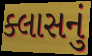
ક્લાસનું